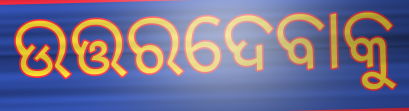
ଉତ୍ତରଦେବାକୁ